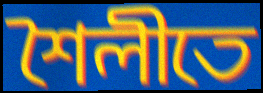
শৈলীতে